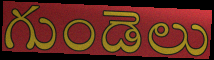
గుండెలు